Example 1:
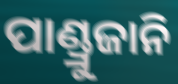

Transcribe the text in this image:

ପାଣ୍ଡ୍ରୁଜାନି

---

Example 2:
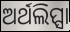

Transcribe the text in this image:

ଅର୍ଥଲିପ୍ସା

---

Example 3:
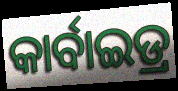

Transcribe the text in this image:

କାର୍ବାଇଡ୍ର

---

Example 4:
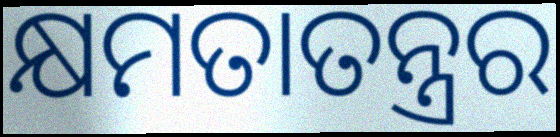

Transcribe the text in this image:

କ୍ଷମତାତନ୍ତ୍ରର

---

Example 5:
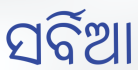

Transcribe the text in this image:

ସର୍ବିଆ